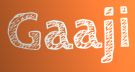
Gaaji